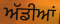
ਅੱਡੀਆਂ